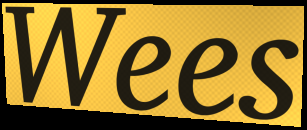
Wees